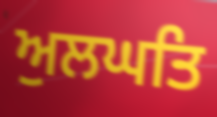
ਅੁਲਘਤਿ